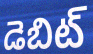
డెబిట్